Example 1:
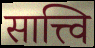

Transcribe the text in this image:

सात्त्वि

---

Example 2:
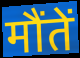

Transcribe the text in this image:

मौंतें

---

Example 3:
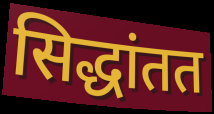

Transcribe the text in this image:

सिद्धांतत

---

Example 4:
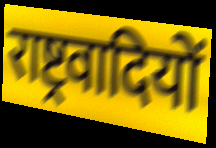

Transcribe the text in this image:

राष्ट्रवादियों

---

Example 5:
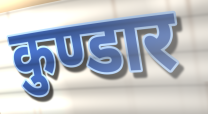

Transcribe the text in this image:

कुण्डार